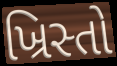
ખ્રિસ્તો